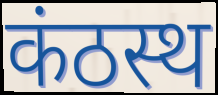
कंठस्थ